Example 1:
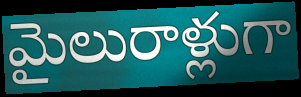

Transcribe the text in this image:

మైలురాళ్లుగా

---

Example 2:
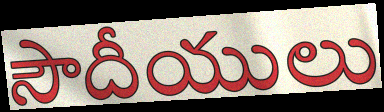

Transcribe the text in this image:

సౌదీయులు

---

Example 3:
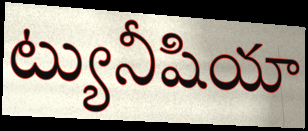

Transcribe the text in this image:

ట్యునీషియా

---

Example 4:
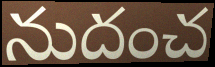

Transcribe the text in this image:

నుదంచ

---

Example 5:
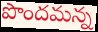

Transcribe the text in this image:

పొందమన్న